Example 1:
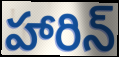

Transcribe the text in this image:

హారిన్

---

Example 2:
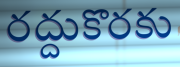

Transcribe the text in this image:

రద్దుకొరకు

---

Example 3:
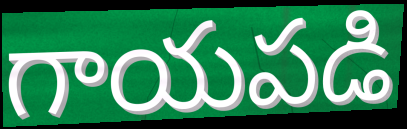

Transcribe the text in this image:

గాయపడి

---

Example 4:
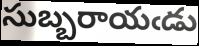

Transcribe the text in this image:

సుబ్బరాయఁడు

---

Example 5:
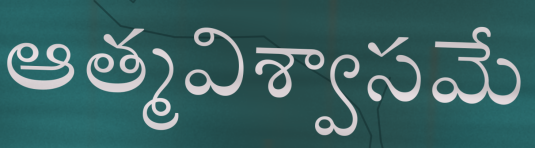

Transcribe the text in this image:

ఆత్మవిశ్వాసమే